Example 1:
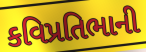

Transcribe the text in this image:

કવિપ્રતિભાની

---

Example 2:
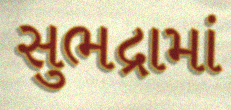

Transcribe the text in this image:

સુભદ્રામાં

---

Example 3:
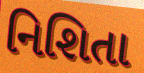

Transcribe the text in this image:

નિશિતા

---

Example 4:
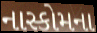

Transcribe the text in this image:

નાસ્કોમના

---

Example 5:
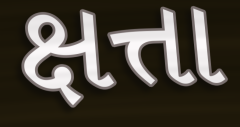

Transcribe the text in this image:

ક્ષત્તા